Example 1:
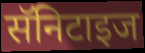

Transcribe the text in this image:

सॅनिटाइज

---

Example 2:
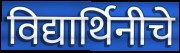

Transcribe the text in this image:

विद्यार्थिनीचे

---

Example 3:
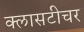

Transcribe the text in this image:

क्लासटीचर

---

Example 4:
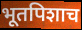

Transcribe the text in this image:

भूतपिशाच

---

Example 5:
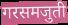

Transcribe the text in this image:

गरसमजुती